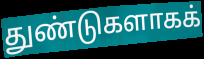
துண்டுகளாகக்